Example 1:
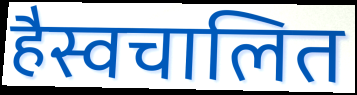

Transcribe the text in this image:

हैस्वचालित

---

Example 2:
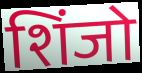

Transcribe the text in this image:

शिंजो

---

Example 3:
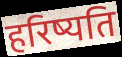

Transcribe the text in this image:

हरिष्यति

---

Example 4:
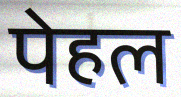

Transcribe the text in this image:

पेहल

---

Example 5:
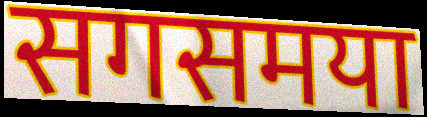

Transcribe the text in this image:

सगसमया